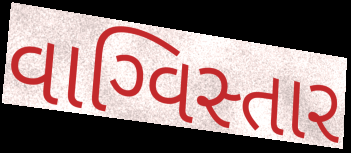
વાગ્વિસ્તાર